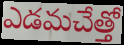
ఎడమచేత్తో